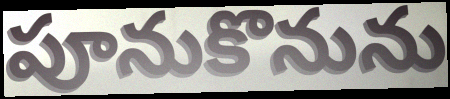
పూనుకొనును